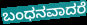
ಬಂಧನವಾದರೆ